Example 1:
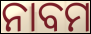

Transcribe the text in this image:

ନାବମ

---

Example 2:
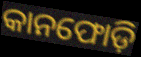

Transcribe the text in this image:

କାନଫୋଡ଼ି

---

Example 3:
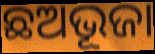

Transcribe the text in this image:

ଛଅଭୂଜା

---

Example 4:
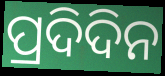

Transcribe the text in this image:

ପ୍ରଦିଦିନ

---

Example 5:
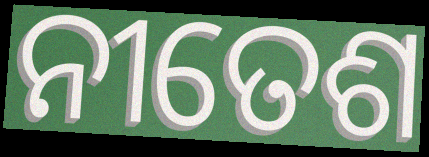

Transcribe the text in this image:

ନୀତେଶ